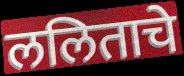
ललिताचे